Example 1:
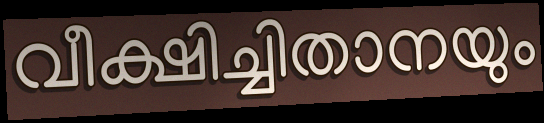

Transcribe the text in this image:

വീക്ഷിച്ചിതാനയും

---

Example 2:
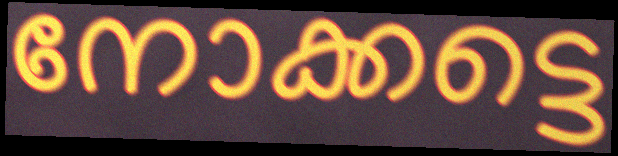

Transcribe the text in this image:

നോക്കട്ടെ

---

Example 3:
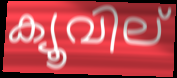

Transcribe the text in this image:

ക്യൂവില്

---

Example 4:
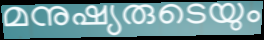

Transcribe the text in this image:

മനുഷ്യരുടെയും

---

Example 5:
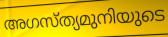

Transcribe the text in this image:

അഗസ്ത്യമുനിയുടെ